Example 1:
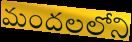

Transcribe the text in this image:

మందలలోని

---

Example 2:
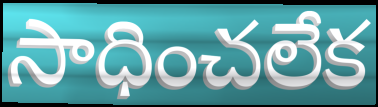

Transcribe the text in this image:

సాధించలేక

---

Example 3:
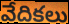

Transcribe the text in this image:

వేదికలు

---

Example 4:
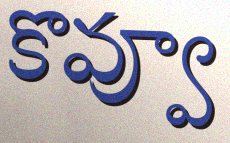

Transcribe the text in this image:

కొవ్వూ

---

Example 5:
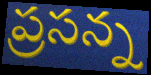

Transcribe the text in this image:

ప్రసన్న